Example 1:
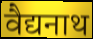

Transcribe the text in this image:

वैद्यनाथ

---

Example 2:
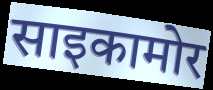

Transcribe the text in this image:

साइकामोर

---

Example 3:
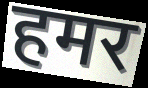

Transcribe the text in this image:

हमर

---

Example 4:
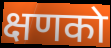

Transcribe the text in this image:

क्षणको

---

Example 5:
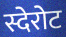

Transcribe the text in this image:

स्देरोट